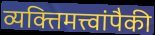
व्यक्तिमत्त्वांपैकी